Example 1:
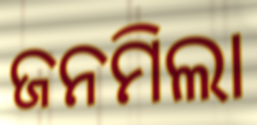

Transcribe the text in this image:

ଜନମିଲା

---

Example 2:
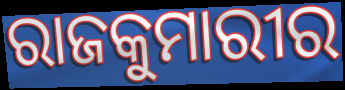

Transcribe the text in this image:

ରାଜକୁମାରୀର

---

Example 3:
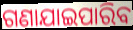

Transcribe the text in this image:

ଗଣାଯାଇପାରିବ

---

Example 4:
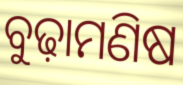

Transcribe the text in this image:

ବୁଢ଼ାମଣିଷ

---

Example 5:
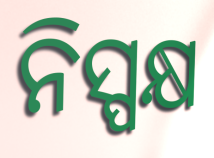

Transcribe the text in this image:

ନିସ୍ପକ୍ଷ